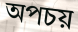
অপচয়